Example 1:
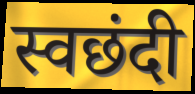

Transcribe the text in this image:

स्वछंदी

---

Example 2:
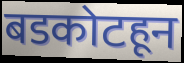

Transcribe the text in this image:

बडकोटहून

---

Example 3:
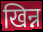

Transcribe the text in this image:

खिन्न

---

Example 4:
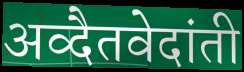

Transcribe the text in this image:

अव्दैतवेदांती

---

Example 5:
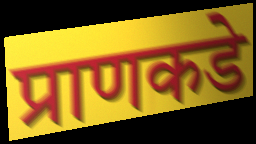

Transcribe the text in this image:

प्राणकडे